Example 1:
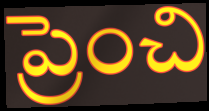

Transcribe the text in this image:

ప్రెంచి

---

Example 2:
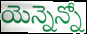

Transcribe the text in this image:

యెన్నెన్నో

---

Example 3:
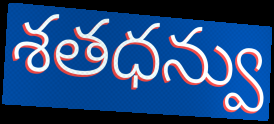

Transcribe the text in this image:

శతధన్వు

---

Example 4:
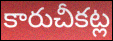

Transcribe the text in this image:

కారుచీకట్ల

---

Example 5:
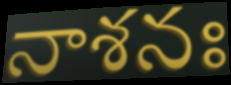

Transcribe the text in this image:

నాశనః